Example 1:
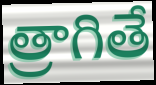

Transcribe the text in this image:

త్రాగితే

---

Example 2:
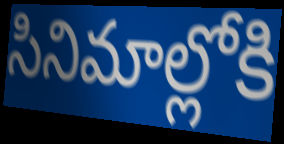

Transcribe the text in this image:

సినిమాల్లోకి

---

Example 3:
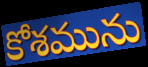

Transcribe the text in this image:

కోశమును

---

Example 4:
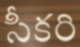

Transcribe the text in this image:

సీకరి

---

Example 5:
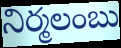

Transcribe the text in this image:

నిర్మలంబు